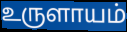
உருளாயம்